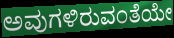
ಅವುಗಳಿರುವಂತೆಯೇ